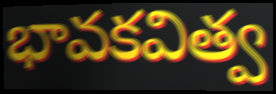
భావకవిత్వ